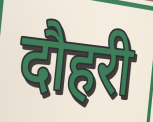
दौहरी